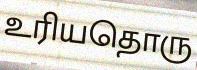
உரியதொரு